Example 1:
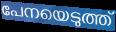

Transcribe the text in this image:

പേനയെടുത്ത്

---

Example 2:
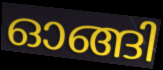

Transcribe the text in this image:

ഓങ്ങി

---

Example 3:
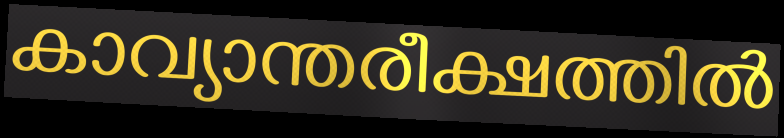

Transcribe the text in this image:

കാവ്യാന്തരീക്ഷത്തിൽ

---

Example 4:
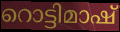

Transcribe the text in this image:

റൊട്ടിമാഷ്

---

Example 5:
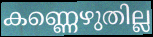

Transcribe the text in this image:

കണ്ണെഴുതില്ല